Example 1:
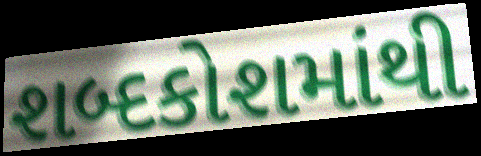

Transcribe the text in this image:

શબ્દકોશમાંથી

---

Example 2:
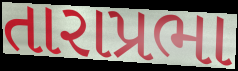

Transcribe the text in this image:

તારાપ્રભા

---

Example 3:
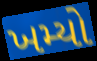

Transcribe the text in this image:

ખમ્યો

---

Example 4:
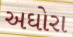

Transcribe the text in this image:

અઘોરા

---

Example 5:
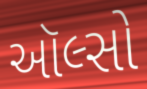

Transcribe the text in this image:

ઑલ્સો